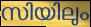
സിയിലും